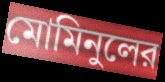
মোমিনুলের